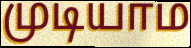
முடியாம